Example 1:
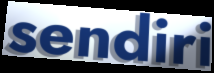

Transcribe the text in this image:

sendiri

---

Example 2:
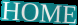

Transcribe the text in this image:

HOME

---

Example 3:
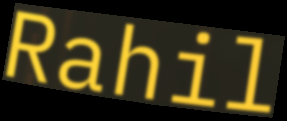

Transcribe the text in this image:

Rahil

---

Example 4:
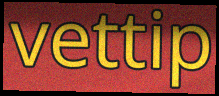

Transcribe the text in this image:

vettip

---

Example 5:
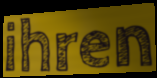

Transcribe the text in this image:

ihren